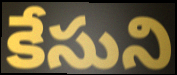
కేసుని